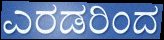
ಎರಡರಿಂದ